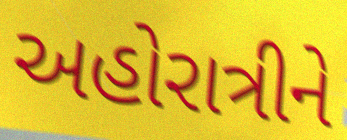
અહોરાત્રીને